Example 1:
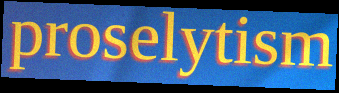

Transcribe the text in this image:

proselytism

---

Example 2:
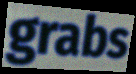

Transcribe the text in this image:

grabs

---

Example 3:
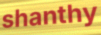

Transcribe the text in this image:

shanthy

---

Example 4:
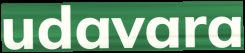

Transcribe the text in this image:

udavara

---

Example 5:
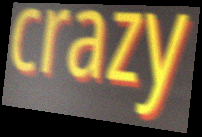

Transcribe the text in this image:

crazy